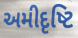
અમીદૃષ્ટિ